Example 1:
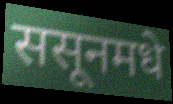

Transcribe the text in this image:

ससूनमधे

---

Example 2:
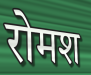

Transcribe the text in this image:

रोमश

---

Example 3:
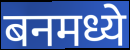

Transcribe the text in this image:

बनमध्ये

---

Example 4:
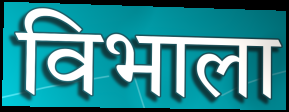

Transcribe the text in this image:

विभाला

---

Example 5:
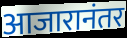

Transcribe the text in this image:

आजारानंतर